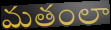
మతంలా